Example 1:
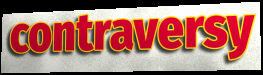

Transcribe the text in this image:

contraversy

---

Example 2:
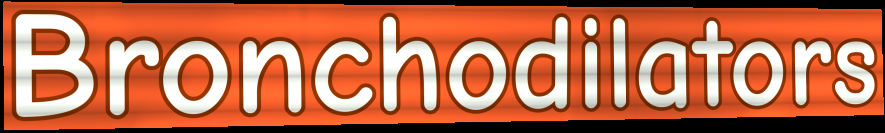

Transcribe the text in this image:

Bronchodilators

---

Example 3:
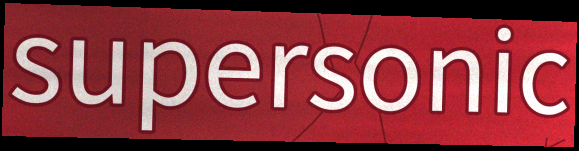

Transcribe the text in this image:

supersonic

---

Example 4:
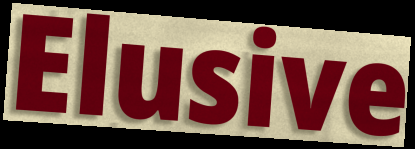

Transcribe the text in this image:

Elusive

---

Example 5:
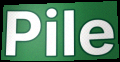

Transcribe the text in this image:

Pile